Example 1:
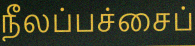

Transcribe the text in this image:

நீலப்பச்சைப்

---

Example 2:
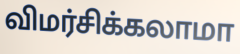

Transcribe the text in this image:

விமர்சிக்கலாமா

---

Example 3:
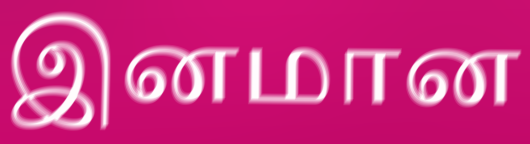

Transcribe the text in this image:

இனமான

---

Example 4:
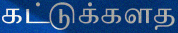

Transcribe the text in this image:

கட்டுக்களத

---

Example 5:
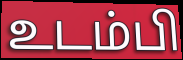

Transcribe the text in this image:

உடம்பி